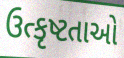
ઉત્કૃષ્ટતાઓ